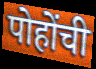
पोहोंची